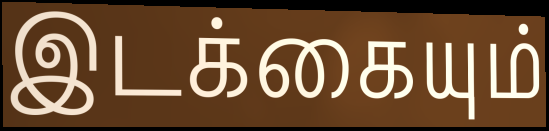
இடக்கையும்